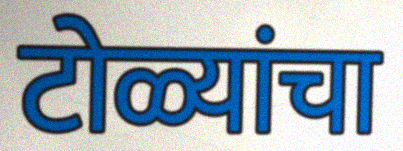
टोळ्यांचा